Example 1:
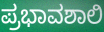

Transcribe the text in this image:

ಪ್ರಭಾವಶಾಲಿ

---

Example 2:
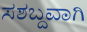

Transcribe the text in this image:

ಸಶಬ್ದವಾಗಿ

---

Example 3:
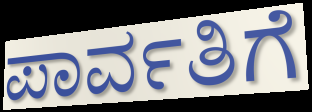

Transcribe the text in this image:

ಪಾರ್ವತಿಗೆ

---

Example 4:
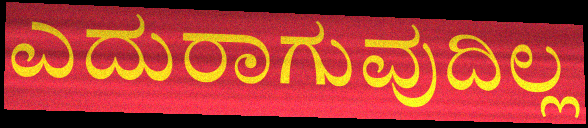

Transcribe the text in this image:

ಎದುರಾಗುವುದಿಲ್ಲ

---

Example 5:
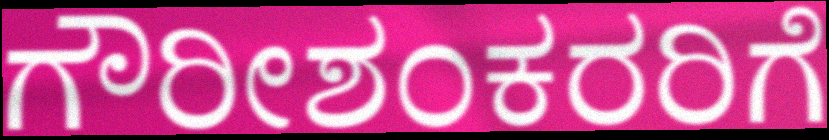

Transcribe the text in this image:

ಗೌರೀಶಂಕರರಿಗೆ